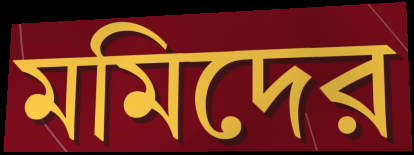
মমিদের